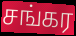
சங்கர